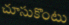
చూసుకొంటు